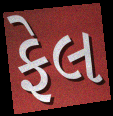
ફેલ